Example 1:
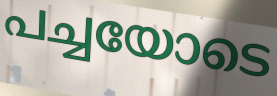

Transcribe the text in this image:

പച്ചയോടെ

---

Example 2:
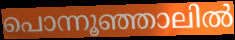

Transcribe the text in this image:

പൊന്നൂഞ്ഞാലിൽ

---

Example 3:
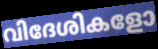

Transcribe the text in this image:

വിദേശികളോ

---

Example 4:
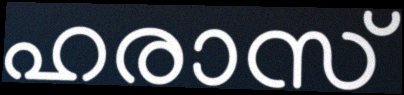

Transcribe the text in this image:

ഹരാസ്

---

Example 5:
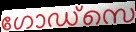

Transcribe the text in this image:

ഗോഡ്സെ